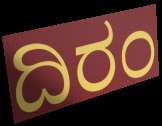
ದಿರಂ